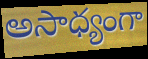
అసాధ్యంగా